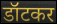
डॉटकर